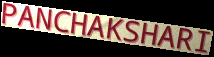
PANCHAKSHARI